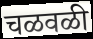
चळवळी